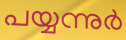
പയ്യന്നുർ